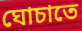
ঘোচাতে